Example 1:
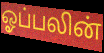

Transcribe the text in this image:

ஓப்பலின்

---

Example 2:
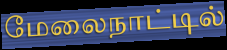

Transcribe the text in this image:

மேலைநாட்டில்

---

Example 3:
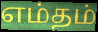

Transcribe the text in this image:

எம்தம்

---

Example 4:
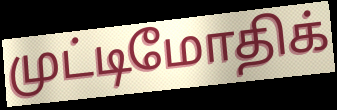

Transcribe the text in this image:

முட்டிமோதிக்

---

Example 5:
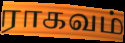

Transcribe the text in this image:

ராகவம்